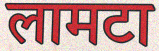
लामटा